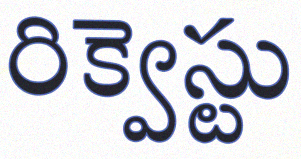
రిక్వెస్టు